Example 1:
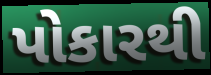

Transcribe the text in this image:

પોકારથી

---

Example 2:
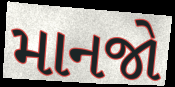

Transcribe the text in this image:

માનજો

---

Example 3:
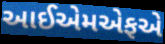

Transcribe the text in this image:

આઈએમએફએ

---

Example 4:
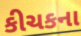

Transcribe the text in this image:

કીચકના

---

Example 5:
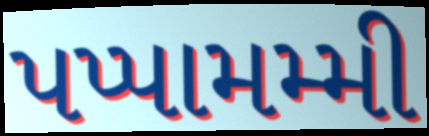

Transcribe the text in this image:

પપ્પામમ્મી